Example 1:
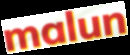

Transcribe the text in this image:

malun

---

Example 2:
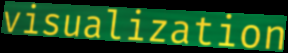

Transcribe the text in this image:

visualization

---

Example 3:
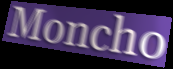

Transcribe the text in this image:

Moncho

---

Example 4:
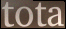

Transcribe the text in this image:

tota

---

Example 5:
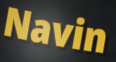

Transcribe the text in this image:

Navin